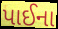
પાઈના